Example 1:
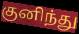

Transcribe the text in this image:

குனிந்து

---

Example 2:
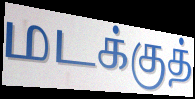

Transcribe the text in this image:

மடக்குத்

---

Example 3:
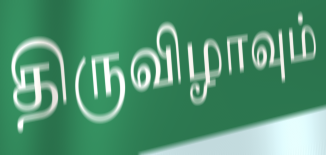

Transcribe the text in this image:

திருவிழாவும்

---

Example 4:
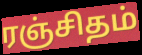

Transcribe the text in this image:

ரஞ்சிதம்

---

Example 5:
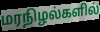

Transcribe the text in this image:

மரநிழல்களில்